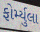
ફોર્મ્યુલા